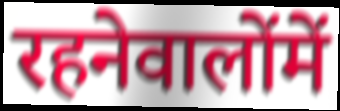
रहनेवालोंमें